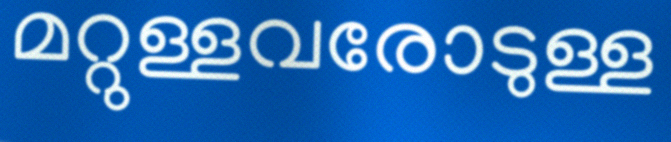
മറ്റുള്ളവരോടുള്ള